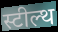
स्टील्थ